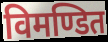
विमण्डित